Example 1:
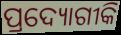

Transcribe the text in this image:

ପ୍ରଦ୍ୟୋଗୀକି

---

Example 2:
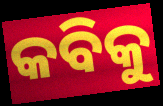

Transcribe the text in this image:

କବିକୁ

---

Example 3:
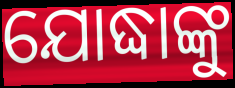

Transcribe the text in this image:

ଯୋଦ୍ଧାଙ୍କୁ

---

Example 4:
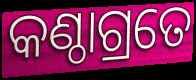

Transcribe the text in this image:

କଣ୍ଠାଗ୍ରତେ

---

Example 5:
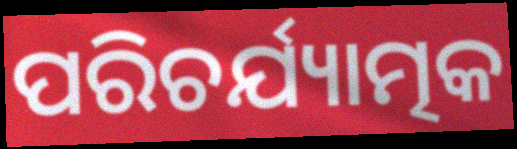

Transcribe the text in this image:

ପରିଚର୍ଯ୍ୟାତ୍ମକ